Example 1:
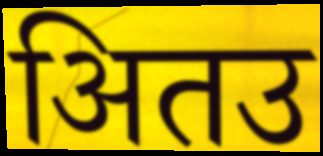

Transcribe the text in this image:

अितउ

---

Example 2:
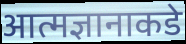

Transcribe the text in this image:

आत्मज्ञानाकडे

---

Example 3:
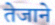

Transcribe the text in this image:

तेजाने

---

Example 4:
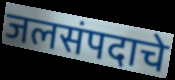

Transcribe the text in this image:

जलसंपदाचे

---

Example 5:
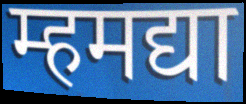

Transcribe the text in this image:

म्हमद्या